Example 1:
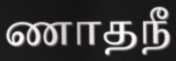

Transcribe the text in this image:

ணாதநீ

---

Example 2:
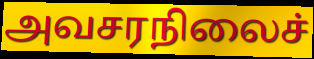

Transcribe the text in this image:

அவசரநிலைச்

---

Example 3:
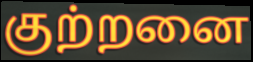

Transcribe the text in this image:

குற்றனை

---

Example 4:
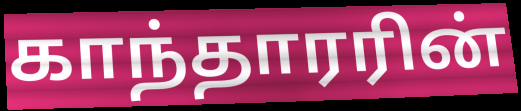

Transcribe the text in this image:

காந்தாரரின்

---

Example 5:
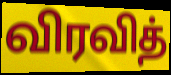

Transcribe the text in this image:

விரவித்